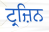
ਟ੍ਰਜ਼ਿਨ